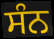
ਸੰਨ